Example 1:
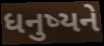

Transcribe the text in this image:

ધનુષ્યને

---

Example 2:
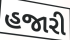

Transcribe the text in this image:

હજારી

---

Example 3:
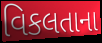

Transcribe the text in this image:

વિકલતાના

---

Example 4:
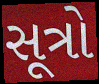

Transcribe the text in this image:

સૂત્રો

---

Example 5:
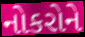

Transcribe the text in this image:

નોકરોને